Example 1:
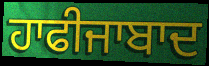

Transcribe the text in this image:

ਹਾਫੀਜਾਬਾਦ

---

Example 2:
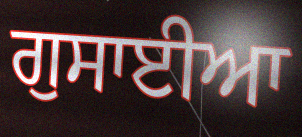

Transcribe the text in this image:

ਗੁਸਾਈਆ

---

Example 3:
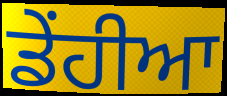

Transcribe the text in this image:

ਡੇਂਹੀਆ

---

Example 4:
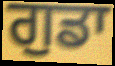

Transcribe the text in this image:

ਗੁਡਾ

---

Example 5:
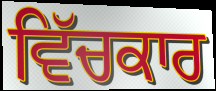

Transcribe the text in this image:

ਵਿੱਚਕਾਰ